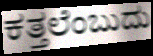
ಕತ್ತಲೆಂಬುದು